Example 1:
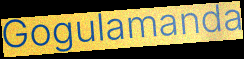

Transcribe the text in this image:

Gogulamanda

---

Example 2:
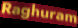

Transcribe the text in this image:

Raghuram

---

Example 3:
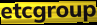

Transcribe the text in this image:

etcgroup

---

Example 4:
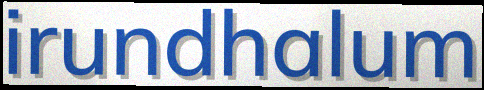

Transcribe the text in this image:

irundhalum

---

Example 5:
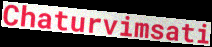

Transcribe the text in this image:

Chaturvimsati